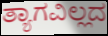
ತ್ಯಾಗವಿಲ್ಲದ